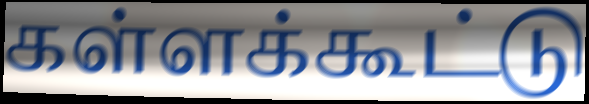
கள்ளக்கூட்டு